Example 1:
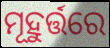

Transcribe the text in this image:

ମୂହୁର୍ତ୍ତରେ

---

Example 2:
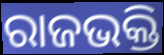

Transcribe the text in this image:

ରାଜଭକ୍ତି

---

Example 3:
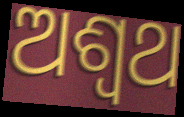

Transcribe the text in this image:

ଅଶ୍ବଥ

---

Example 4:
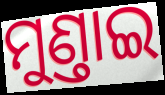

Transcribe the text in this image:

ମୁଣ୍ତାଇ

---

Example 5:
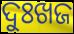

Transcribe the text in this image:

ଦୁଃଖଜ